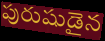
పురుషుడైన